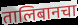
तालिबानचा